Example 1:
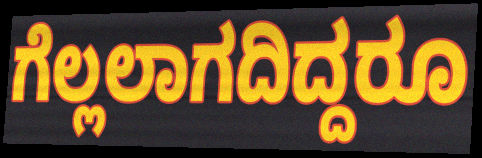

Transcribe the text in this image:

ಗೆಲ್ಲಲಾಗದಿದ್ದರೂ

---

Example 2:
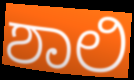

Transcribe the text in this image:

ಶಾಲಿ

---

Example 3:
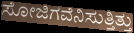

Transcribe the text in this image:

ಸೋಜಿಗವೆನಿಸುತ್ತಿತ್ತು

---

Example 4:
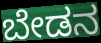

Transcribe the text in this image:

ಬೇಡನ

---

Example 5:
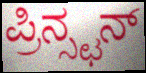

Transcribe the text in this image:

ಪ್ರಿನ್ಸ್ಟನ್